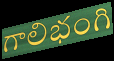
గాలిభంగి